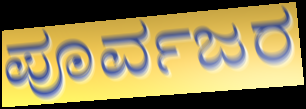
ಪೂರ್ವಜರ